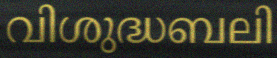
വിശുദ്ധബലി